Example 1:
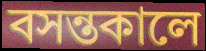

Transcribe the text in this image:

বসন্তকালে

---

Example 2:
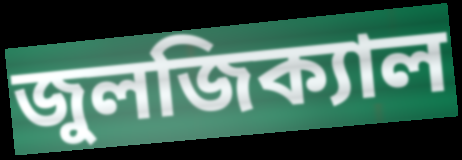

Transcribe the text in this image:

জুলজিক্যাল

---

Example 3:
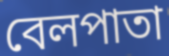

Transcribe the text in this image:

বেলপাতা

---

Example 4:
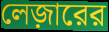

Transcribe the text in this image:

লেজ়ারের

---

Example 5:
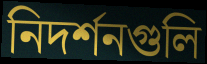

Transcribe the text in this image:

নিদর্শনগুলি